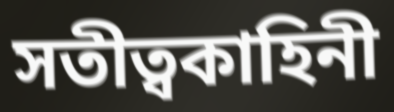
সতীত্বকাহিনী